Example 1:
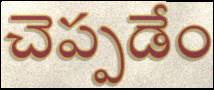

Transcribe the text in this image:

చెప్పడేం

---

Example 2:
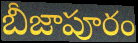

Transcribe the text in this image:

బీజాపూరం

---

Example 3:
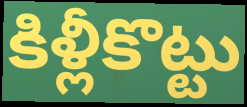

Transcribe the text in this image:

కిళ్లీకొట్టు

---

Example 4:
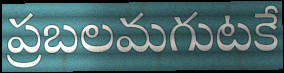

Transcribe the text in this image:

ప్రబలమగుటకే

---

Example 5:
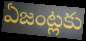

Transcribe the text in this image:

ఏజంట్లకు